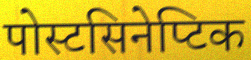
पोस्टसिनेप्टिक